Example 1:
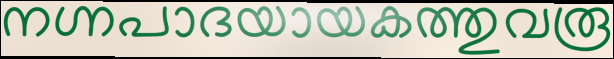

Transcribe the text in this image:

നഗ്നപാദയായകത്തുവരൂ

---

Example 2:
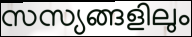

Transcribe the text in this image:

സസ്യങ്ങളിലും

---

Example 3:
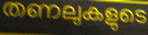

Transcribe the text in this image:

തണലുകളുടെ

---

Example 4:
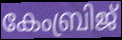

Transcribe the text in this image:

കേംബ്രിജ്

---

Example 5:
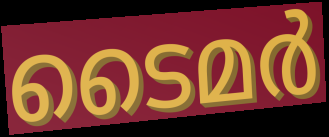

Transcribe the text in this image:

ടൈമർ